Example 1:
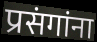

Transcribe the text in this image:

प्रसंगांना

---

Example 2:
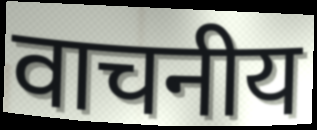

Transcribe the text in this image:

वाचनीय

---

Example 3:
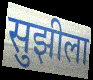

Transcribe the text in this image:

सुझीला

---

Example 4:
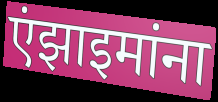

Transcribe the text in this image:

एंझाइमांना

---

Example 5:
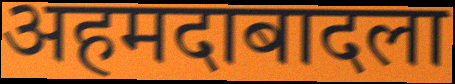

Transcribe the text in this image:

अहमदाबादला